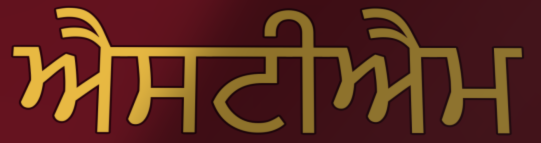
ਐਸਟੀਐਮ